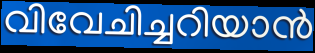
വിവേചിച്ചറിയാൻ